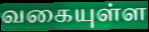
வகையுள்ள